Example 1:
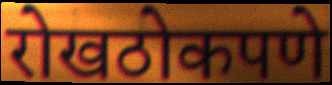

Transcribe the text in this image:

रोखठोकपणे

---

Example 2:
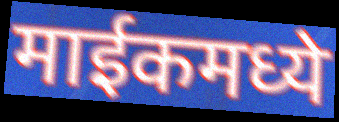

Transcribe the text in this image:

माईकमध्ये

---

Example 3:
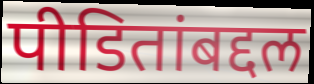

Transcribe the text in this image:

पीडितांबद्दल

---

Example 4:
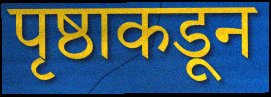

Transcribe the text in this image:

पृष्ठाकडून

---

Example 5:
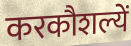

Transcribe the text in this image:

करकौशल्यें